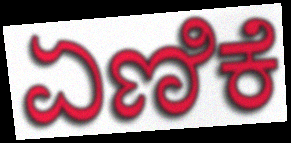
ಏಣಿಕೆ